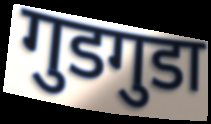
गुडगुडा